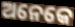
ଅନେକେ